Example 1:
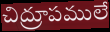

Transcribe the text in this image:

చిద్రూపములే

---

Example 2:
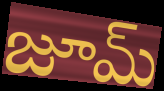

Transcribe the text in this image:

జూమ్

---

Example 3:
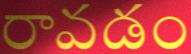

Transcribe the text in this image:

రావడం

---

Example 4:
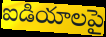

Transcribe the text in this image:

ఐడియాలపై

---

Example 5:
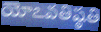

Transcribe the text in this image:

యోఽవతిష్ఠతి